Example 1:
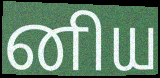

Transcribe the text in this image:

னிய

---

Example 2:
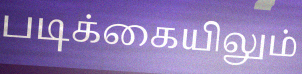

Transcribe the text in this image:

படிக்கையிலும்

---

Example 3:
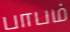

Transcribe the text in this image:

பாபம்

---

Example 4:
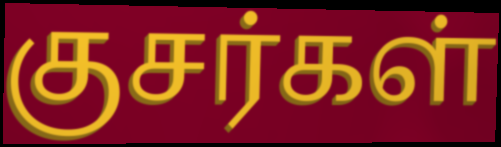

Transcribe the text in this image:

குசர்கள்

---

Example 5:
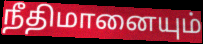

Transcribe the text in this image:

நீதிமானையும்